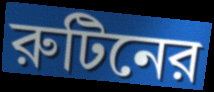
রুটিনের